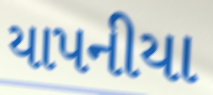
યાપનીયા